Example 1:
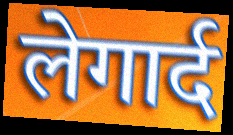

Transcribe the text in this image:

लेगार्द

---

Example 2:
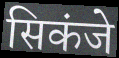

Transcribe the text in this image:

सिकंजे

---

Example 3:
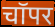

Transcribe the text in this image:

चॉपर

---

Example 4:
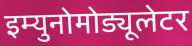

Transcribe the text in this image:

इम्युनोमोड्यूलेटर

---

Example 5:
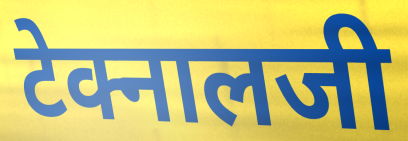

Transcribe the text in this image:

टेक्नालजी